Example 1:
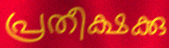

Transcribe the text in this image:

പ്രതീക്ഷക്കു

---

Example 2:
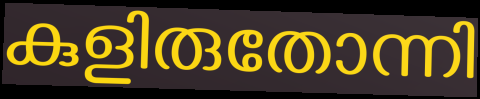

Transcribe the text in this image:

കുളിരുതോന്നി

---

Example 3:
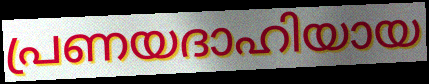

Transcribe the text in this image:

പ്രണയദാഹിയായ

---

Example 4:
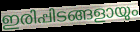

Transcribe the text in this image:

ഇരിപ്പിടങ്ങളായും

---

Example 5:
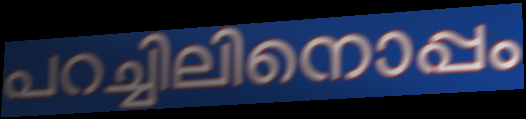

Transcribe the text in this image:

പറച്ചിലിനൊപ്പം